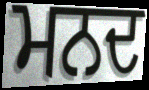
ਮਨਦ